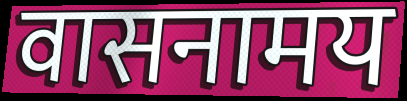
वासनामय